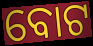
ବୋଟ